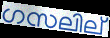
ഗസലില്